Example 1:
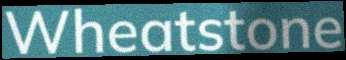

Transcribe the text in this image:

Wheatstone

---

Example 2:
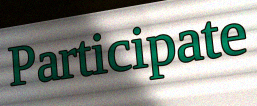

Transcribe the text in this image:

Participate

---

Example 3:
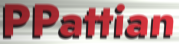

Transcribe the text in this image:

PPattian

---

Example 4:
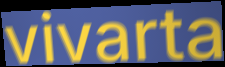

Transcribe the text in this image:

vivarta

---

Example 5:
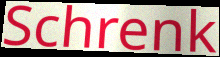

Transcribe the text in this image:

Schrenk